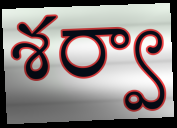
శర్వా